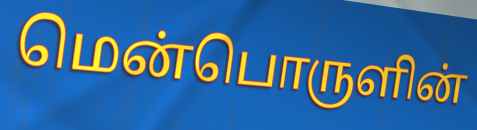
மென்பொருளின்